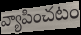
వ్యాపించటం